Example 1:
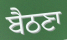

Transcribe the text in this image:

ਬੈਠਣਾ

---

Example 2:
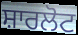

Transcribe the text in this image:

ਸ਼ਾਰਲੋਟ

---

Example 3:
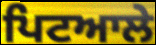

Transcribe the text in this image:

ਪਿਟਆਲੇ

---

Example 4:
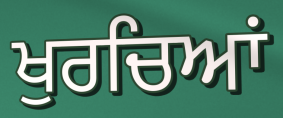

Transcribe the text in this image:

ਖੁਰਚਿਆਂ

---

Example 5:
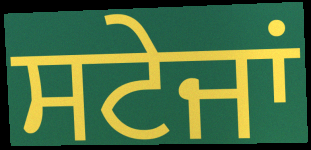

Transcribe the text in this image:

ਸਟੇਜਾਂ